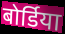
बोर्डिया